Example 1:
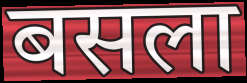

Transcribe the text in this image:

बसला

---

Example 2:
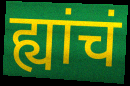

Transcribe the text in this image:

ह्यांचं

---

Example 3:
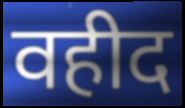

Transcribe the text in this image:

वहीद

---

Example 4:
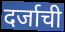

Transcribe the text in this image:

दर्जाची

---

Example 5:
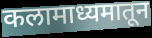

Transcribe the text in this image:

कलामाध्यमातून